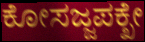
ಕೋಸಜ್ಜಪಕ್ಖೇ